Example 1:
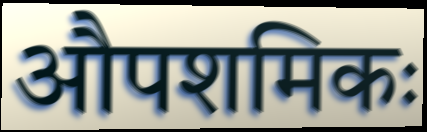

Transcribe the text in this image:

औपशमिकः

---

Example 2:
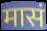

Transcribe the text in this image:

मासं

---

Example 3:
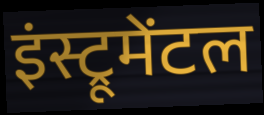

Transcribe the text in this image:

इंस्ट्रूमेंटल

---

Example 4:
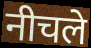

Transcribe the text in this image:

नीचले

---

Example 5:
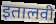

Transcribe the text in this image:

इतालवी